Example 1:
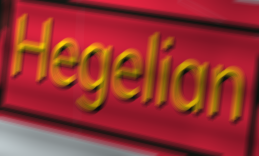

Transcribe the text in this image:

Hegelian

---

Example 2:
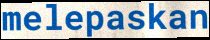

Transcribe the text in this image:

melepaskan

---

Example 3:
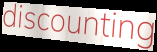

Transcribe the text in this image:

discounting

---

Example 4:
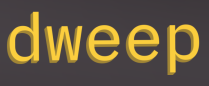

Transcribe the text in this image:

dweep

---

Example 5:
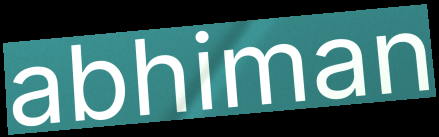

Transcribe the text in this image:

abhiman